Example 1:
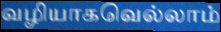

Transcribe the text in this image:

வழியாகவெல்லாம்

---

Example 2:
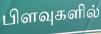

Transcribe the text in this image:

பிளவுகளில்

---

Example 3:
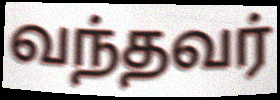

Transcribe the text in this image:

வந்தவர்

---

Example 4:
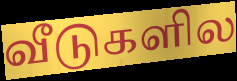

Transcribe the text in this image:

வீடுகளில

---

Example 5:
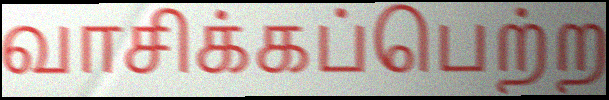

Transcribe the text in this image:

வாசிக்கப்பெற்ற